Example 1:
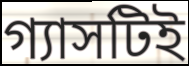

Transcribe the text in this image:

গ্যাসটিই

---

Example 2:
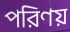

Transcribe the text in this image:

পরিণয়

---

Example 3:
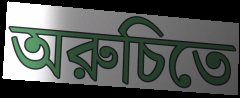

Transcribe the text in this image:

অরুচিতে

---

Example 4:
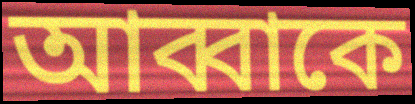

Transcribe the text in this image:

আব্বাকে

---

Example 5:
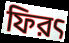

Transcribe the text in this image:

ফিরৎ